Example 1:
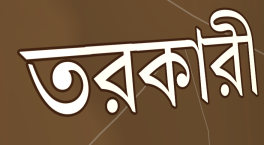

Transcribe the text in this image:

তরকারী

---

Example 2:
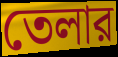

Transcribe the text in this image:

তেলার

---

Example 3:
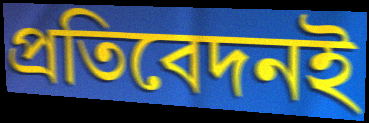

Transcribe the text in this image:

প্রতিবেদনই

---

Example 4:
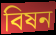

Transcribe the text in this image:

বিষন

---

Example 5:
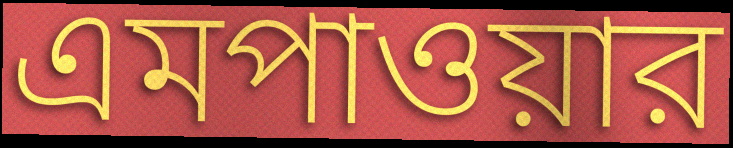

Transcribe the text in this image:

এমপাওয়ার